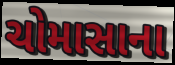
ચોમાસાના